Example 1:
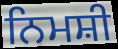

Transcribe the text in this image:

ਨਿਮਸ਼ੀ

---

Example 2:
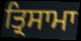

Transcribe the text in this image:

ਤ੍ਰਿਸਾਮਾ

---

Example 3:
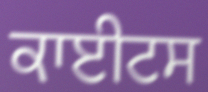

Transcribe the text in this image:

ਕਾਈਟਸ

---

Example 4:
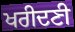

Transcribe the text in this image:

ਖਰੀਦਣੀ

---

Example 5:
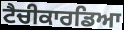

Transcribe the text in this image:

ਟੈਚੀਕਾਰਡਿਆ